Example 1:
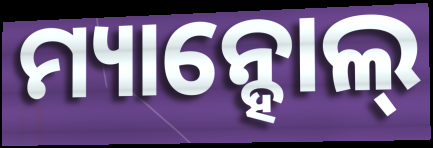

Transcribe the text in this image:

ମ୍ୟାନ୍ହୋଲ୍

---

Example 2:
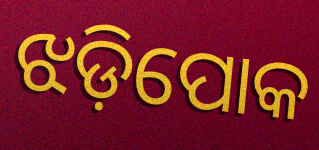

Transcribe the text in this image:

ଝଡ଼ିପୋକ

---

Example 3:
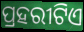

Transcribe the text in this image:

ପ୍ରହରୀଟିଏ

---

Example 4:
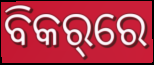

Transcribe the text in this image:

ବିକର୍‌ରେ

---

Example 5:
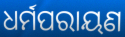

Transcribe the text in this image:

ଧର୍ମପରାୟଣ